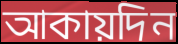
আকায়দিন